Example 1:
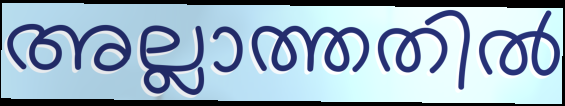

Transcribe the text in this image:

അല്ലാത്തതിൽ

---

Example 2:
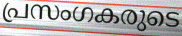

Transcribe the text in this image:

പ്രസംഗകരുടെ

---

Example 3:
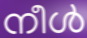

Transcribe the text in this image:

നീൾ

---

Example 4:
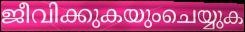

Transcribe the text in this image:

ജീവിക്കുകയുംചെയ്യുക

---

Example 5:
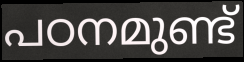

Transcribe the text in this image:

പഠനമുണ്ട്